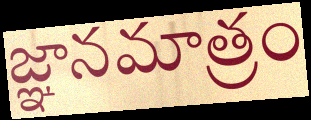
జ్ఞానమాత్రం